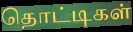
தொட்டிகள்